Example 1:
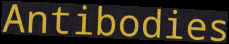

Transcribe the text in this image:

Antibodies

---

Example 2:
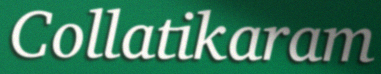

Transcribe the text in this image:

Collatikaram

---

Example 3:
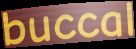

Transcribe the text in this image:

buccal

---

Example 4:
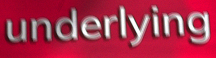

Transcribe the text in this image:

underlying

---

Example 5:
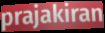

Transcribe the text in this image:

prajakiran